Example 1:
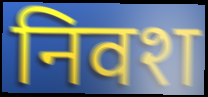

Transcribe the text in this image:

निवश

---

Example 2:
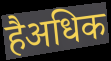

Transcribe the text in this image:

हैअधिक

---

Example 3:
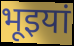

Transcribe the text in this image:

भूइयां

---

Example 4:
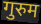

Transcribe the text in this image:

गुरुम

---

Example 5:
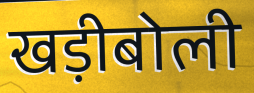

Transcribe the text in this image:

खड़ीबोली